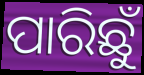
ପାରିଛୁଁ